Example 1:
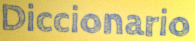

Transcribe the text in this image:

Diccionario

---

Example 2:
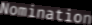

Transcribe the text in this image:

Nomination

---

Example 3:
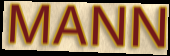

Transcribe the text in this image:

MANN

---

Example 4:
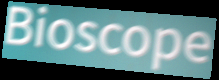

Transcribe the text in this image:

Bioscope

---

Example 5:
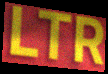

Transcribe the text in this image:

LTR